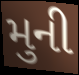
મુની